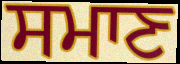
ਸਮਾਣ